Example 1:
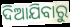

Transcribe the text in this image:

ଦିଆଯିବାରୁ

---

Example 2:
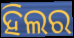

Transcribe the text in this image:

ହିଲର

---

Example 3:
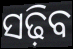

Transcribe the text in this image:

ସଢ଼ିବ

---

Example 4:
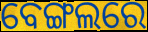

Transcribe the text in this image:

ବେଙ୍ଗଲରେ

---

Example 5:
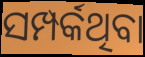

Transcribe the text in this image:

ସମ୍ପର୍କଥିବା